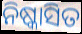
ନିଷ୍କାସିତ